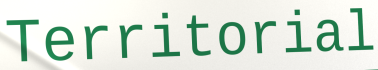
Territorial